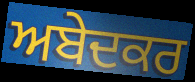
ਅਬੇਦਕਰ